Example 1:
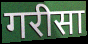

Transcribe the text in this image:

गरीसा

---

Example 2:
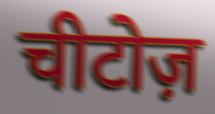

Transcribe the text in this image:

चीटोज़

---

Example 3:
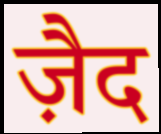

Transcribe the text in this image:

ज़ैद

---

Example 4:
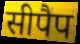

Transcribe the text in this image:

सीपैप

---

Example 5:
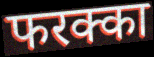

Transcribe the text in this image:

फरक्का